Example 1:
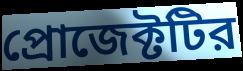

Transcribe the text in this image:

প্রোজেক্টটির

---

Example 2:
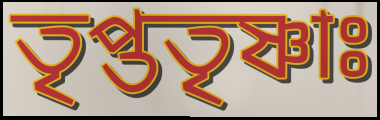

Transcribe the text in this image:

তৃপ্ততৃষ্ণাঃ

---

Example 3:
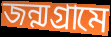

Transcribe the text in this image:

জন্মগ্রামে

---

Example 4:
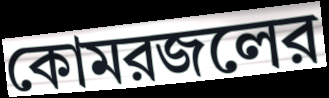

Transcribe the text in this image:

কোমরজলের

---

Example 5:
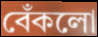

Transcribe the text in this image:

বেঁকলো